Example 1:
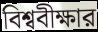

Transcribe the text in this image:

বিশ্ববীক্ষার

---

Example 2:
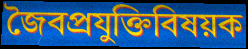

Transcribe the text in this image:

জৈবপ্রযুক্তিবিষয়ক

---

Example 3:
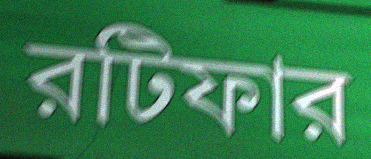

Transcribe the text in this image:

রটিফার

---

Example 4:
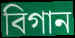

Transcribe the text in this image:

বিগান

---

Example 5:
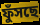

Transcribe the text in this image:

ফুঁসছে